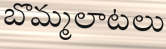
బొమ్మలాటలు